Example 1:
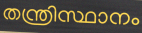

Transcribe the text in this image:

തന്ത്രിസ്ഥാനം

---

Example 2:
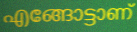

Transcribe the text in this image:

എങ്ങോട്ടാണ്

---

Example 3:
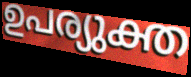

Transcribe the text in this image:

ഉപര്യുക്ത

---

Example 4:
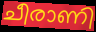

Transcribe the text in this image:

ചീരാണി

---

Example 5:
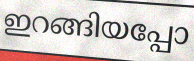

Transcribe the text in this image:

ഇറങ്ങിയപ്പോ